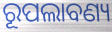
ରୂପଲାବଣ୍ୟ